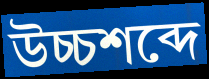
উচ্চশব্দে